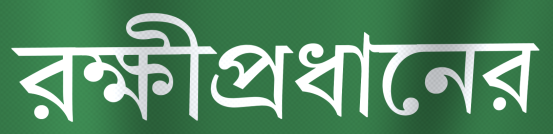
রক্ষীপ্রধানের